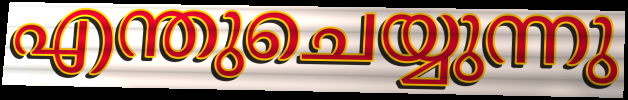
എന്തുചെയ്യുന്നു